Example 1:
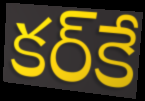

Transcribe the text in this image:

కర్‌కే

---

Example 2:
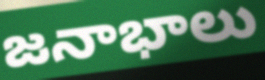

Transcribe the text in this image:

జనాభాలు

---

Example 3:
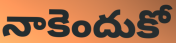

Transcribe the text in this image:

నాకెందుకో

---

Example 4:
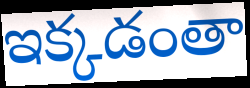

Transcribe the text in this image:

ఇక్కడంతా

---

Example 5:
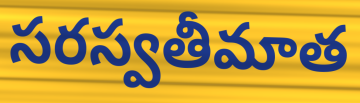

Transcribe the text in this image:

సరస్వతీమాత